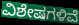
ವಿಶೇಷಗಳಿವೆ